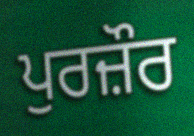
ਪੁਰਜ਼ੌਰ